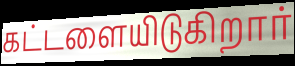
கட்டளையிடுகிறார்